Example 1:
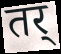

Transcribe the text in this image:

तर्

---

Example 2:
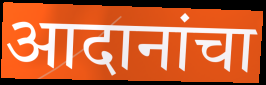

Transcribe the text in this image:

आदानांचा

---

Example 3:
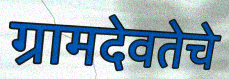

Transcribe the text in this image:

ग्रामदेवतेचे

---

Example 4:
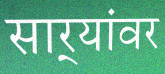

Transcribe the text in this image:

सार्यांवर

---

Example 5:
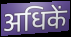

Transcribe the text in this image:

अधिकें